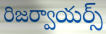
రిజర్వాయర్స్